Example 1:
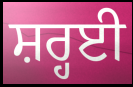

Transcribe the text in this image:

ਸ਼ਰ੍ਹਈ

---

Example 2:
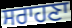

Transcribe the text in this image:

ਸਰਾਹਣਾ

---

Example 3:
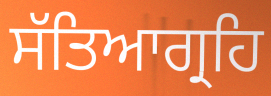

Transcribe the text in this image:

ਸੱਤਿਆਗ੍ਰਹਿ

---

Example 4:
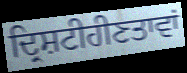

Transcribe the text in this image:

ਦ੍ਰਿਸ਼ਟੀਹੀਣਤਾਵਾਂ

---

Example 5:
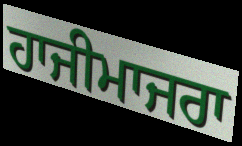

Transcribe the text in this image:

ਹਾਜੀਮਾਜਰਾ